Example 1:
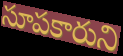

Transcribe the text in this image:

సూపకారుని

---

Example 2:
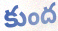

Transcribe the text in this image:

కుంద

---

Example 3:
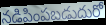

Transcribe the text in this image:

నడిపింపబడుదురో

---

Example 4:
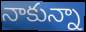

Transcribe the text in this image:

నాకున్నా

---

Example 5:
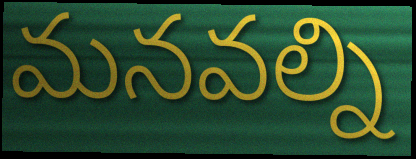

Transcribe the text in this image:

మనవల్ని